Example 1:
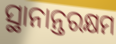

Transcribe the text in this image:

ସ୍ଥାନାନ୍ତରକ୍ଷମ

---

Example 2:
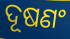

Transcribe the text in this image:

ଦୂଷଣଂ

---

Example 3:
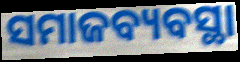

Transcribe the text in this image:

ସମାଜବ୍ୟବସ୍ଥା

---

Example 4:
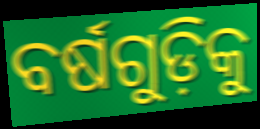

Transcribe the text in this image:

ବର୍ଷଗୁଡ଼ିକୁ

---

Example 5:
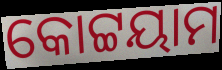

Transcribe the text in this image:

କୋଟ୍ଟୟାମ